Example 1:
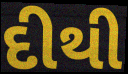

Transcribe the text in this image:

દીથી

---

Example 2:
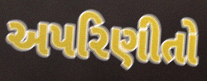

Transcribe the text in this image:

અપરિણીતો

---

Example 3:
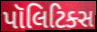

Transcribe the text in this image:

પૉલિટિક્સ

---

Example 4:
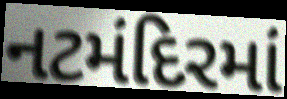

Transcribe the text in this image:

નટમંદિરમાં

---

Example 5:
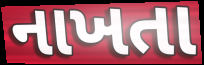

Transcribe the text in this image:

નાખતા